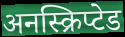
अनस्क्रिप्टेड